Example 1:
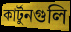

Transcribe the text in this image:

কার্টুনগুলি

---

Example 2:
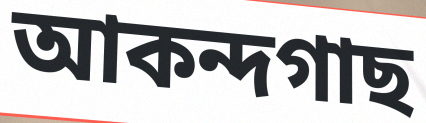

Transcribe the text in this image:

আকন্দগাছ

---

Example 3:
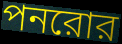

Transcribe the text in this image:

পনরোর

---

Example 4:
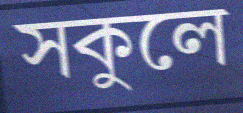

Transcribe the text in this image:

সকুলে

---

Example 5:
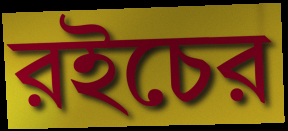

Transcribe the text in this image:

রইচের